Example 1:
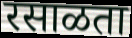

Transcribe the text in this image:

रसाळता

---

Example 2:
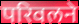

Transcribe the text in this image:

परिवलने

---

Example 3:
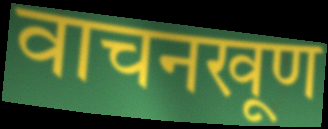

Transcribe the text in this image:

वाचनखूण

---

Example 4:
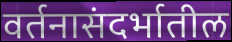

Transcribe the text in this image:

वर्तनासंदर्भातील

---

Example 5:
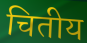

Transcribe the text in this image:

चितीय